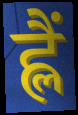
ह्लैं